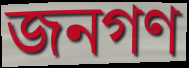
জনগণ